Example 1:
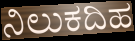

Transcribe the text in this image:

ನಿಲುಕದಿಹ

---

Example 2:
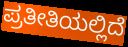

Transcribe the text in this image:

ಪ್ರತೀತಿಯಲ್ಲಿದೆ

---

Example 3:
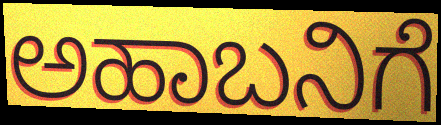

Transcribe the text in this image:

ಅಹಾಬನಿಗೆ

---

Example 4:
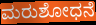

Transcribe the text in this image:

ಮರುಶೋಧನೆ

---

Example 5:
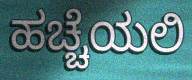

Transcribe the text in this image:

ಹಚ್ಚೆಯಲಿ